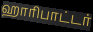
ஹாரிபாட்டர்